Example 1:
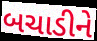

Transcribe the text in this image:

બચાડીને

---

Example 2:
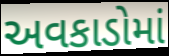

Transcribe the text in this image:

અવકાડોમાં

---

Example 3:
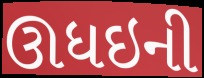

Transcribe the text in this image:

ઊધઇની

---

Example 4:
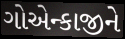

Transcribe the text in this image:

ગોએન્કાજીને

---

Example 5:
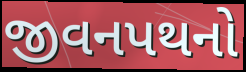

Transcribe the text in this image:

જીવનપથનો